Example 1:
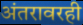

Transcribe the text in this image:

अंतरावरही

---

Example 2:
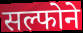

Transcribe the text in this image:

सल्फोने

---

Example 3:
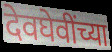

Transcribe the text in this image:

देवघेवींच्या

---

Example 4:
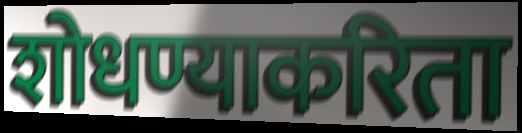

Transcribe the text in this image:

शोधण्याकरिता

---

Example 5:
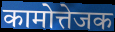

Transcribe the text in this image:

कामोत्तेजक